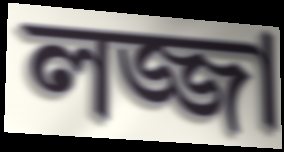
লজ্জা